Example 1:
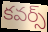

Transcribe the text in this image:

కవర్స్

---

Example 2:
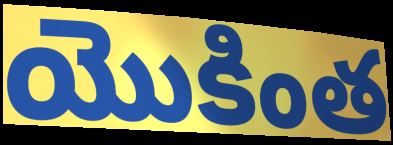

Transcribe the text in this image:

యొకింత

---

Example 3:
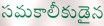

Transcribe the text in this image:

సమకాలీకుడైన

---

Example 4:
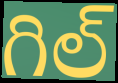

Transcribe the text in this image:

గిల్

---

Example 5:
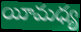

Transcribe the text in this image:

యీమధ్య